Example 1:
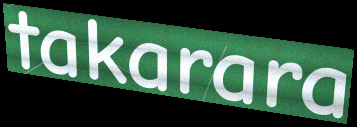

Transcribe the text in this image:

takarara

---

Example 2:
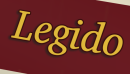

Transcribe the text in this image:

Legido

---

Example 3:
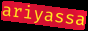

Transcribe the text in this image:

ariyassa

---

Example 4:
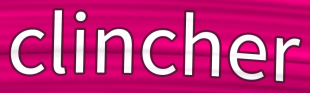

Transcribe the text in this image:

clincher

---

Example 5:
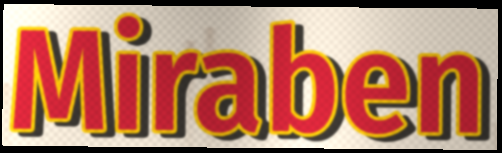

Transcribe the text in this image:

Miraben